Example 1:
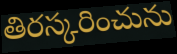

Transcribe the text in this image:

తిరస్కరించును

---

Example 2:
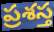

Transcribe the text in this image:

ప్రశస్త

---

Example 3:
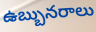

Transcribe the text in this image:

ఉబ్బునరాలు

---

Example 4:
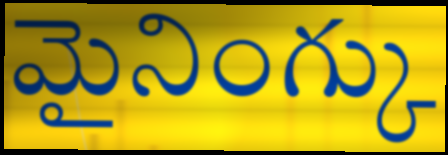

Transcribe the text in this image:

మైనింగ్కు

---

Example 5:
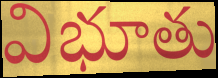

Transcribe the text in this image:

విభూతు